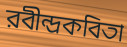
রবীন্দ্রকবিতা